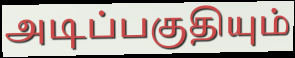
அடிப்பகுதியும்